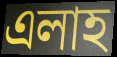
এলাহ